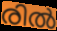
രിൽ